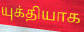
யுக்தியாக